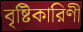
বৃষ্টিকারিণী